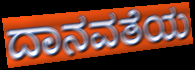
ದಾನವತೆಯ